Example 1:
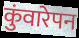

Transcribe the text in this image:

कुंवारेपन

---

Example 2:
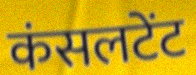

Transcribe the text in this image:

कंसलटेंट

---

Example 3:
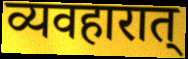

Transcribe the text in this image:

व्यवहारात्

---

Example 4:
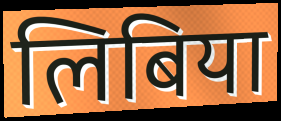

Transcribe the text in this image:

लिबिया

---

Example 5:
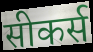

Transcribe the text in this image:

सीकर्स